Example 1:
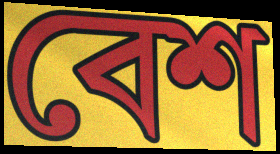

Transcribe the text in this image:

বেশ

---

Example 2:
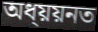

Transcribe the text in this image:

অধ্য়য়নত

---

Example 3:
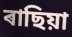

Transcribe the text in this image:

ৰাছিয়া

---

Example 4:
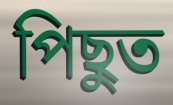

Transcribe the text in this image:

পিছুত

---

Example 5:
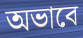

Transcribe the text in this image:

অভাবে